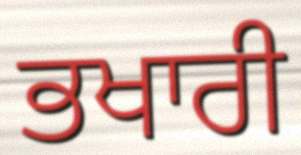
ਭਖਾਰੀ